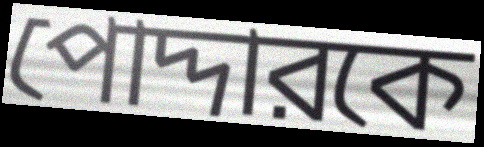
পোদ্দারকে